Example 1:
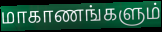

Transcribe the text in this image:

மாகாணங்களும்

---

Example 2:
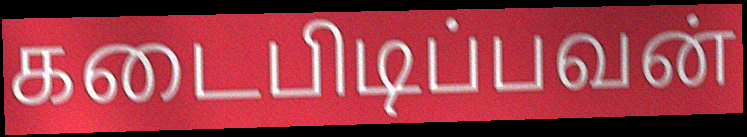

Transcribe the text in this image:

கடைபிடிப்பவன்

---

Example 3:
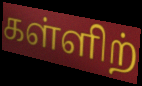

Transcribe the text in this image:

கள்ளிற்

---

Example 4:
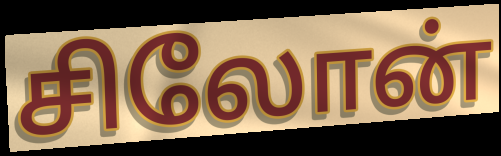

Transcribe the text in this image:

சிலோன்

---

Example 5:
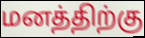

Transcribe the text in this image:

மனத்திற்கு